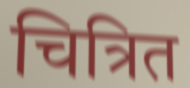
चित्रित